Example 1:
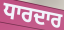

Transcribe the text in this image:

ਧਾਰਦਾਰ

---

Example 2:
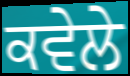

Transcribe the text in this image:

ਕਵੇਲੇ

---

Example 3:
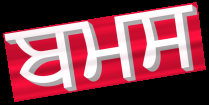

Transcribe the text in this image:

ਬਮਸ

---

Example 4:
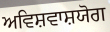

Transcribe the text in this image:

ਅਵਿਸ਼ਵਾਸ਼ਯੋਗ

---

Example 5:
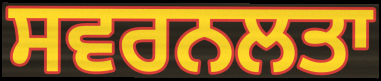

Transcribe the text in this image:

ਸਵਰਨਲਤਾ